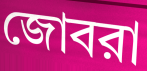
জোবরা